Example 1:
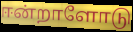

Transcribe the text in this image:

ஈன்றாளோடு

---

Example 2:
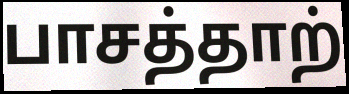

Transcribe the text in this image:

பாசத்தாற்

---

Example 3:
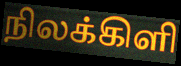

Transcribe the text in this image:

நிலக்கிளி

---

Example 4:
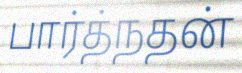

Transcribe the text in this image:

பார்த்நதன்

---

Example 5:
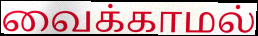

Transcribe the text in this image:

வைக்காமல்